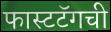
फास्टटॅगची